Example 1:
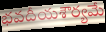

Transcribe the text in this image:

భవదీయశౌర్యమే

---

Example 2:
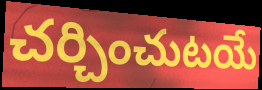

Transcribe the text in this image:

చర్చించుటయే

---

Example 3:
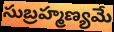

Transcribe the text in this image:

సుబ్రహ్మణ్యమే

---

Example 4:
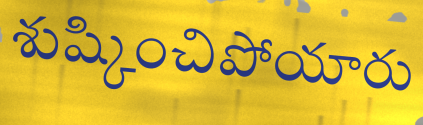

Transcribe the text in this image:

శుష్కించిపోయారు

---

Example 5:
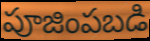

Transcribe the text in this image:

పూజింపబడి